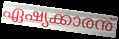
ഏഷ്യക്കാരനു്